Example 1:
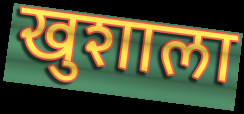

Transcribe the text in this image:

खुशाला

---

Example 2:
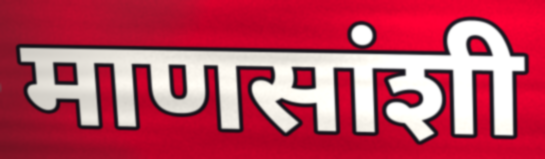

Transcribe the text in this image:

माणसांशी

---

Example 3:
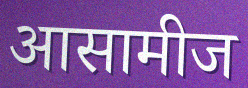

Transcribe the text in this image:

आसामीज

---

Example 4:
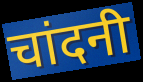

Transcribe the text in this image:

चांदनी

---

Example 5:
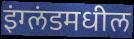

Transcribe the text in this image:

इंग्लंडमधील